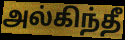
அல்கிந்தீ